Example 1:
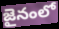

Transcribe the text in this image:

జైనంలో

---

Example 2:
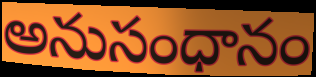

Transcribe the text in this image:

అనుసంధానం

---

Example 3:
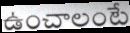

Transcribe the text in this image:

ఉంచాలంటే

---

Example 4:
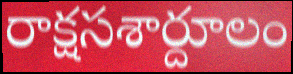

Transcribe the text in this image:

రాక్షసశార్దూలం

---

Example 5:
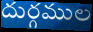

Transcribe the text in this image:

దుర్గముల